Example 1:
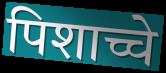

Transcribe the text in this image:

पिशाच्चे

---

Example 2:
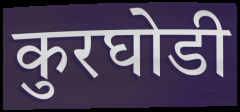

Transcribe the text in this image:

कुरघोडी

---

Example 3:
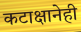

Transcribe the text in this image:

कटाक्षानेही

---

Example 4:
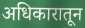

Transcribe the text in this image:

अधिकारातून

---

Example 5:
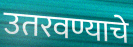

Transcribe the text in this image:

उतरवण्याचे